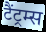
टैंट्रम्स